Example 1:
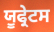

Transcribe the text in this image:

ਯੂਫ੍ਰੇਟਸ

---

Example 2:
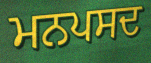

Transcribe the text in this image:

ਮਨਪਸਦ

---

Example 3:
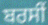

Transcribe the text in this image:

ਬਰਸੀਂ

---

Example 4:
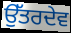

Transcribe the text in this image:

ਉੱਤਰਦੇਵ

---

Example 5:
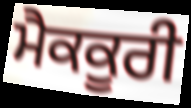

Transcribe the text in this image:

ਮੈਕਕੂਰੀ